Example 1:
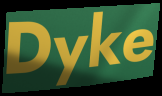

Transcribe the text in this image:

Dyke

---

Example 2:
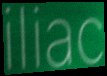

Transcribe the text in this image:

iliac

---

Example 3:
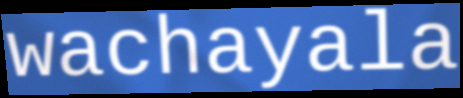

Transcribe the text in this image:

wachayala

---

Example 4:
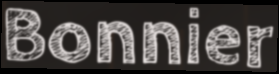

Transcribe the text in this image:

Bonnier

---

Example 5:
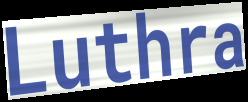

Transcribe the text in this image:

Luthra